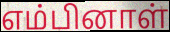
எம்பினாள்